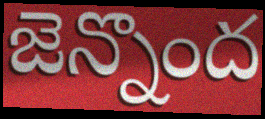
జెన్నొంద